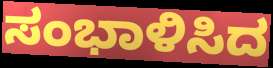
ಸಂಭಾಳಿಸಿದ